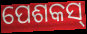
ପେଶକସ୍